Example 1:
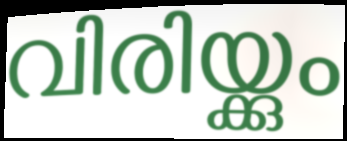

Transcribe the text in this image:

വിരിയ്ക്കും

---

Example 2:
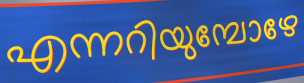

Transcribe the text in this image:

എന്നറിയുമ്പോഴേ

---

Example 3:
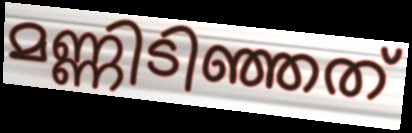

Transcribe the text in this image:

മണ്ണിടിഞ്ഞത്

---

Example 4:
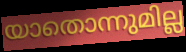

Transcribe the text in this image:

യാതൊന്നുമില്ല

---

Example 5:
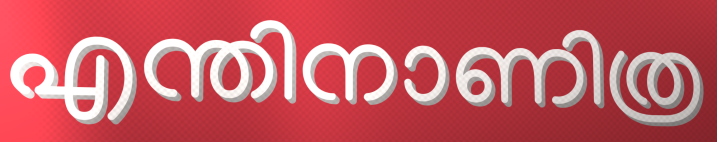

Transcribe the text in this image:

എന്തിനാണിത്ര